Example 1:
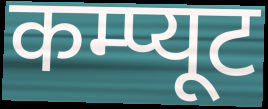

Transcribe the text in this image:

कम्प्यूट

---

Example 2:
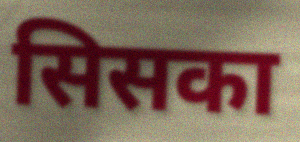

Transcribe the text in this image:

सिसका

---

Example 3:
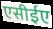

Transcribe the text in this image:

एसीईए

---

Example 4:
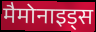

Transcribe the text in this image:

मैमोनाइड्स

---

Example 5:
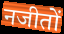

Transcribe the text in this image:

नजीतों